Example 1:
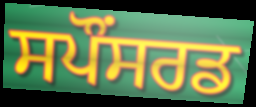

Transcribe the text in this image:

ਸਪੌਂਸਰਡ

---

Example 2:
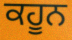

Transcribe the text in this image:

ਕਹੂਨ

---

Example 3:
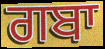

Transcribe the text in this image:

ਗਬਾ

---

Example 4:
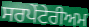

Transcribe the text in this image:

ਸਰਪੇਂਟੇਰੀਅਮ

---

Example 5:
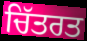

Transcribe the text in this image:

ਚਿੱਤਰਤ